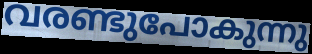
വരണ്ടുപോകുന്നു